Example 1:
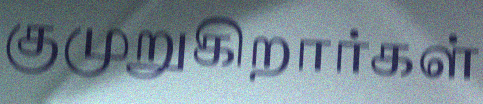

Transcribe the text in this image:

குமுறுகிறார்கள்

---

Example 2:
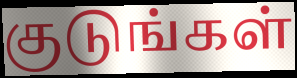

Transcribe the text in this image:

குடுங்கள்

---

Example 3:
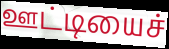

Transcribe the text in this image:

ஊட்டியைச்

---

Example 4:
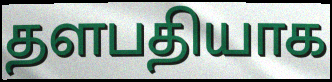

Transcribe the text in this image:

தளபதியாக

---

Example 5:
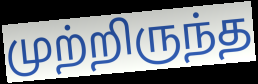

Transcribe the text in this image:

முற்றிருந்த